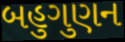
બહુગુણન